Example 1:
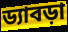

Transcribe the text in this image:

ড্যাবড়া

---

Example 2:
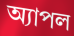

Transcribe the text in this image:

অ্যাপল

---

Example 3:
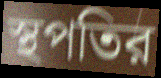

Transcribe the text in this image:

স্থপতির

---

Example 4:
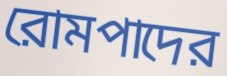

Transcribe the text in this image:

রোমপাদের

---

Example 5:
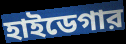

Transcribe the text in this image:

হাইডেগার